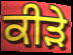
ਕੀੜੇ